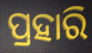
ପ୍ରହାରି